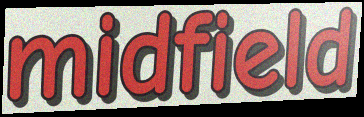
midfield